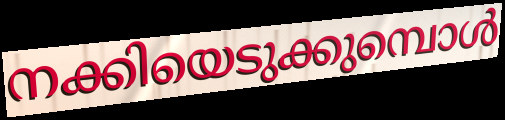
നക്കിയെടുക്കുമ്പൊൾ